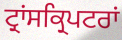
ਟ੍ਰਾਂਸਕ੍ਰਿਪਟਰਾਂ